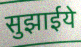
सुझाईये